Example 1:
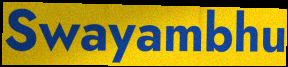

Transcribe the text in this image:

Swayambhu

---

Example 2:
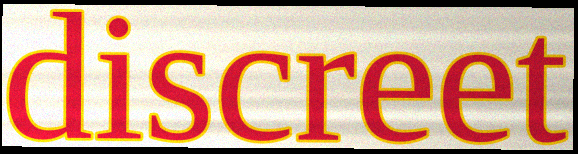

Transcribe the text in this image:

discreet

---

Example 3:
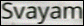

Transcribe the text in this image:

Svayam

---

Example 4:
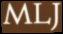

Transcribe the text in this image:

MLJ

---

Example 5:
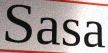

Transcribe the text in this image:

Sasa